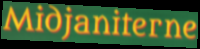
Midjaniterne